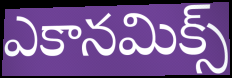
ఎకానమిక్స్